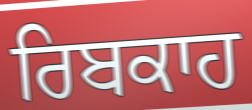
ਰਿਬਕਾਹ